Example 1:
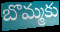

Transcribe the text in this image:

బొమ్మకు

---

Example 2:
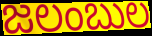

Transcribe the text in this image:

జలంబుల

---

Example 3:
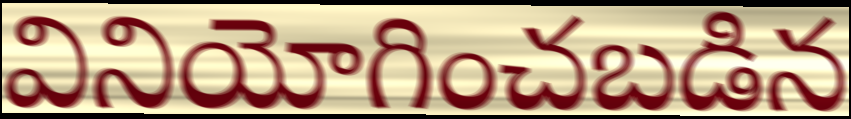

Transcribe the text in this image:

వినియోగించబడిన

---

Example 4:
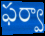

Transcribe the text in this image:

ఫర్వా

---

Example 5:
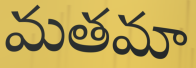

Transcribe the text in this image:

మతమా